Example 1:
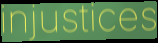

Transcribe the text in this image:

injustices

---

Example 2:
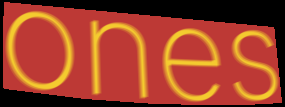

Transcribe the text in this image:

ones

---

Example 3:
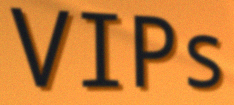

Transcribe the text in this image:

VIPs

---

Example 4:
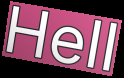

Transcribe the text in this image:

Hell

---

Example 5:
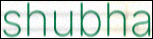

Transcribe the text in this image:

shubha